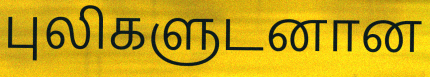
புலிகளுடனான